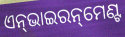
ଏନ୍‌ଭାଇରନ୍‌ମେଣ୍ଟ